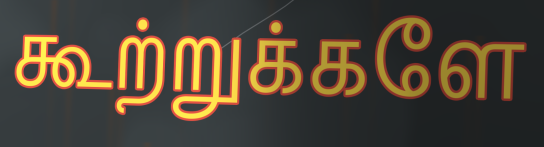
கூற்றுக்களே